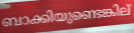
ബാക്കിയുണ്ടെങ്കില്